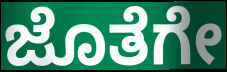
ಜೊತೆಗೇ